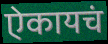
ऐकायचं